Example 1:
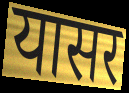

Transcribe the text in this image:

यासर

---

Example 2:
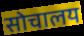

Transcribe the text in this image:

सोचालय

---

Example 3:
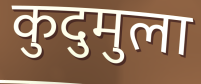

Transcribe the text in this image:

कुदुमुला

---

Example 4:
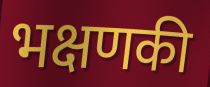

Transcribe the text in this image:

भक्षणकी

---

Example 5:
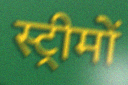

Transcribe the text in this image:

स्ट्रीमों